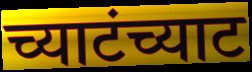
च्याटंच्याट